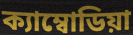
ক্যাম্বোডিয়া